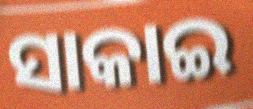
ସାକାଇ